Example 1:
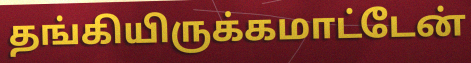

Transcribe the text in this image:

தங்கியிருக்கமாட்டேன்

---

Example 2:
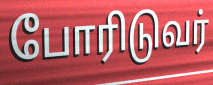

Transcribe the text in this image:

போரிடுவர்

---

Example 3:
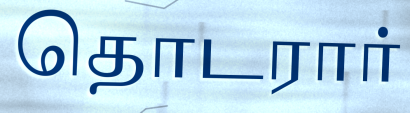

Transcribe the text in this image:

தொடரார்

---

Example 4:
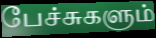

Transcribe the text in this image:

பேச்சுகளும்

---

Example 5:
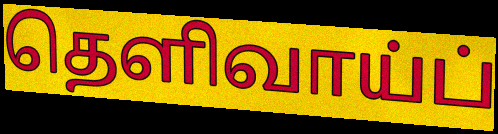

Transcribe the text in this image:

தெளிவாய்ப்